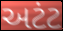
અટંટ